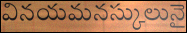
వినయమనస్కులునై